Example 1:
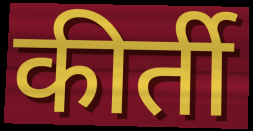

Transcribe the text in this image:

कीर्ती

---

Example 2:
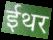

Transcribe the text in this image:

ईथर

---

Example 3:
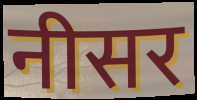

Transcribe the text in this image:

नीसर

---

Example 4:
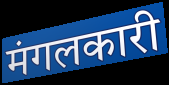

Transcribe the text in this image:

मंगलकारी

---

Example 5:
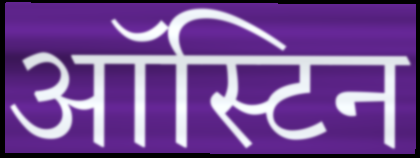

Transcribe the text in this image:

ऑस्टिन